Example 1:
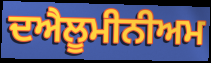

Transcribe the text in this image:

ਦਐਲੂਮੀਨੀਅਮ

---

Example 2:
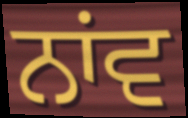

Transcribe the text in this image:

ਨਾਂਵ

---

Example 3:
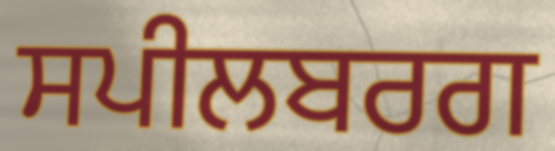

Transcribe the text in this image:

ਸਪੀਲਬਰਗ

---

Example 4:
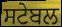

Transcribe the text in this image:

ਸਟੇਬਲ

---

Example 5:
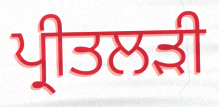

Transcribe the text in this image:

ਪ੍ਰੀਤਲੜੀ